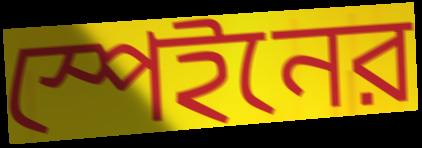
স্পেইনের